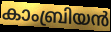
കാംബ്രിയൻ